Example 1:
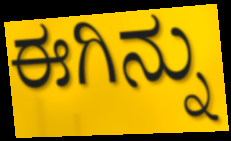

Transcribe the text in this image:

ಈಗಿನ್ನು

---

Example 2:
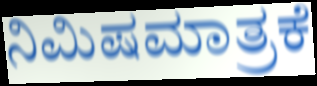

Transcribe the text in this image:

ನಿಮಿಷಮಾತ್ರಕೆ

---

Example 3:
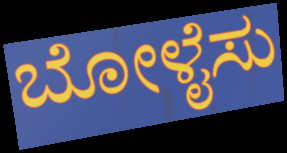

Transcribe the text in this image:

ಬೋಳೈಸು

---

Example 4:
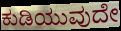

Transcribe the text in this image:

ಕುಡಿಯುವುದೇ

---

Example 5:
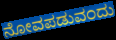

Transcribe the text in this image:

ನೋವಪಡುವಂದು